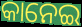
କାନେଇ